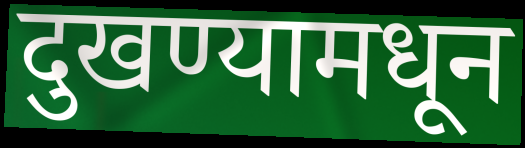
दुखण्यामधून